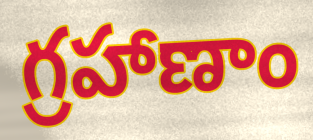
గ్రహాణాం